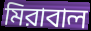
মিরাবাল